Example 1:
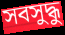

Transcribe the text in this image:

সবসুদ্ধু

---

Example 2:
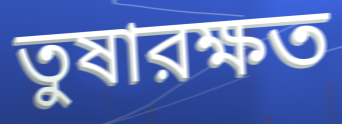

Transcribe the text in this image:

তুষারক্ষত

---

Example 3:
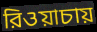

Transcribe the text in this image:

রিওয়াচায়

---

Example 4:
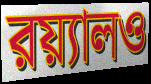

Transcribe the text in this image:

রয়্যালও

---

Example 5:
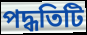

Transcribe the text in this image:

পদ্ধতিটি